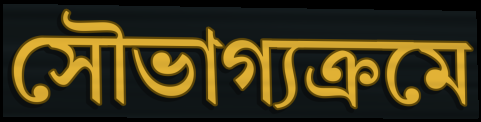
সৌভাগ্যক্ৰমে